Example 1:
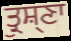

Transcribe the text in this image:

ਤ੍ਰੁਸ਼੍ਣਾ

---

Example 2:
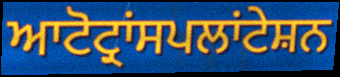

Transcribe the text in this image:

ਆਟੋਟ੍ਰਾਂਸਪਲਾਂਟੇਸ਼ਨ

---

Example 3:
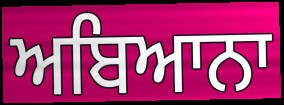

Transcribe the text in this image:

ਅਬਿਆਨਾ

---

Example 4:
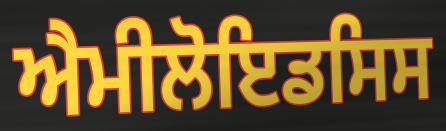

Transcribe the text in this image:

ਐਮੀਲੋਇਡਸਿਸ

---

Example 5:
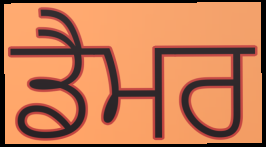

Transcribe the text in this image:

ਡੈਮਰ